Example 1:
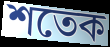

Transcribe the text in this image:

শতেক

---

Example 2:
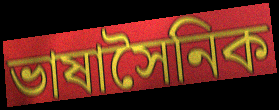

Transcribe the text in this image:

ভাষাসৈনিক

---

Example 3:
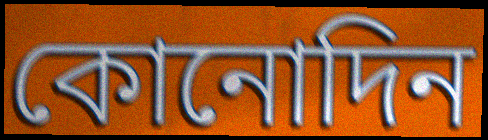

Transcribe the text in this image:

কোনোদিন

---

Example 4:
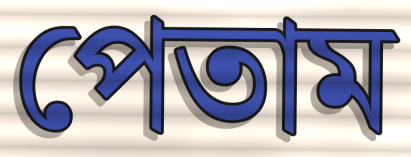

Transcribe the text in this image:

পেতাম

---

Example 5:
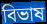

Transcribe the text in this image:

বিভাষ